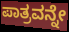
ಪಾತ್ರವನ್ನೇ